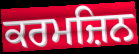
ਕਰਮਜ਼ਿਨ